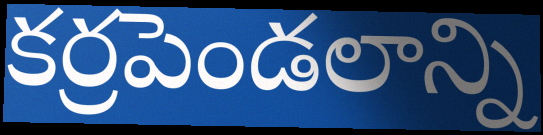
కర్రపెండలాన్ని